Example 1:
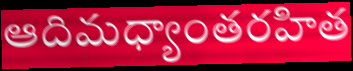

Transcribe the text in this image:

ఆదిమధ్యాంతరహిత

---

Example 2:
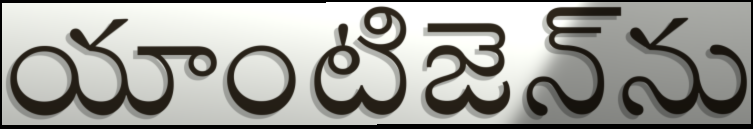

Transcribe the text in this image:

యాంటిజెన్‌ను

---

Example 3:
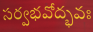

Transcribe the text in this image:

సర్వభవోద్భవః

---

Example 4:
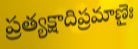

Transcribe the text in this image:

ప్రత్యక్షాదిప్రమాణైః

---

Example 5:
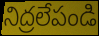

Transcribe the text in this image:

నిద్రలేపండి